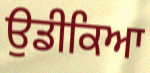
ਉਡੀਕਿਆ